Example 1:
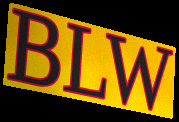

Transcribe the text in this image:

BLW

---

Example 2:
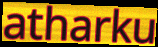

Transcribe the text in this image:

atharku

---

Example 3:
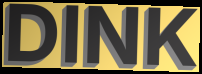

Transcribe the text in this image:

DINK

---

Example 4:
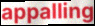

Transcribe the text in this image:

appalling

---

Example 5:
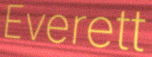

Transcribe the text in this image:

Everett